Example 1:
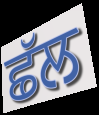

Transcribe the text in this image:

ਛੱਲ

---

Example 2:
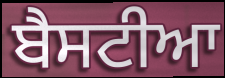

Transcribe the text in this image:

ਬੈਸਟੀਆ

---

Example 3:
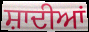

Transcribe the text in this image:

ਸ਼ਾਦੀਆਂ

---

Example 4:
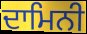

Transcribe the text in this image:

ਦਾਮਿਨੀ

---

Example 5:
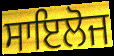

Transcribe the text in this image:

ਸਾਇਲੋਜ